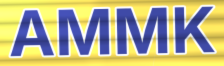
AMMK